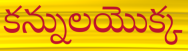
కన్నులయొక్క